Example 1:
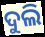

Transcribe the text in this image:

ଦୁଲି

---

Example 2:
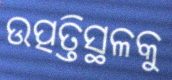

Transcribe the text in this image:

ଉତ୍ପତ୍ତିସ୍ଥଳକୁ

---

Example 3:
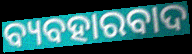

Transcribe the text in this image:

ବ୍ୟବହାରବାଦ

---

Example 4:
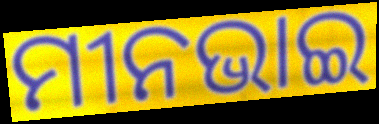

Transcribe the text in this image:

ମୀନଭାଇ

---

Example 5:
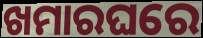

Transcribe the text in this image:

ଖମାରଘରେ